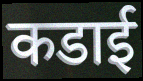
कडाई